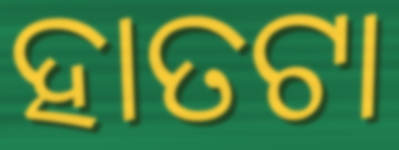
ହାତଟା